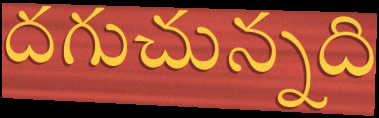
దగుచున్నది